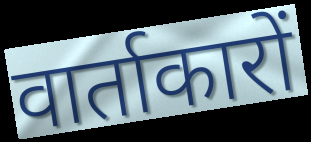
वार्ताकारों